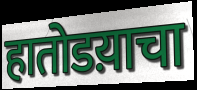
हातोडय़ाचा